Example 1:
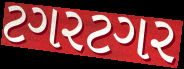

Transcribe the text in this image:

ટગરટગર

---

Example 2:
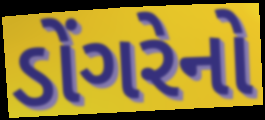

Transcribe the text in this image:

ડોંગરેનો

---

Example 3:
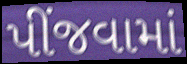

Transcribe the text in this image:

પીંજવામાં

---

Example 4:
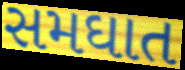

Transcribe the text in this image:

સમઘાત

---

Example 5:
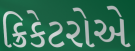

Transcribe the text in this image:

ક્રિકેટરોએ